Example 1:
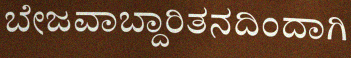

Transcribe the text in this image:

ಬೇಜವಾಬ್ದಾರಿತನದಿಂದಾಗಿ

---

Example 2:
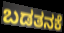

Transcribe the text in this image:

ಬಡತನಕೆ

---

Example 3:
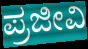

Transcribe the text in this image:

ಪ್ರಜೀವಿ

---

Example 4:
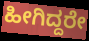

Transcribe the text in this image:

ಹೀಗಿದ್ದರೇ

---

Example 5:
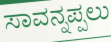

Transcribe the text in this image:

ಸಾವನ್ನಪ್ಪಲು